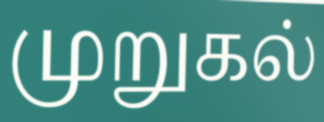
முறுகல்